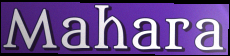
Mahara